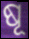
ଷୂ